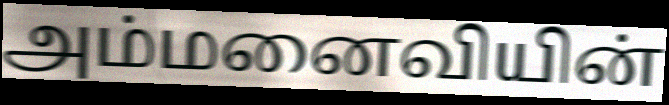
அம்மனைவியின்